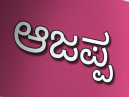
ಆಜಪ್ಪ